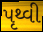
પૃથ્વી